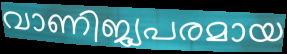
വാണിജ്യപരമായ